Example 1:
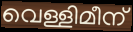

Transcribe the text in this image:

വെള്ളിമീന്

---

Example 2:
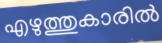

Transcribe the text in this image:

എഴുത്തുകാരിൽ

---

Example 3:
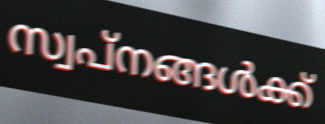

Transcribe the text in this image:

സ്വപ്നങ്ങൾക്ക്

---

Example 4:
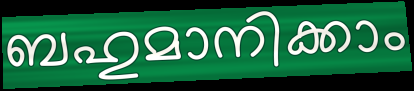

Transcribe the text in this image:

ബഹുമാനിക്കാം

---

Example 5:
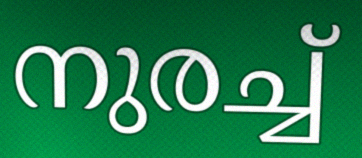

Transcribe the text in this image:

നുരച്ച്